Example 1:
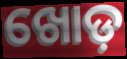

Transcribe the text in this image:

ଖୋଡ଼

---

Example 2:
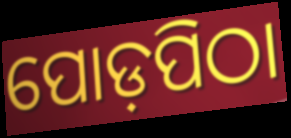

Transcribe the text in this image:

ପୋଡ଼ପିଠା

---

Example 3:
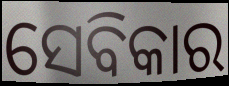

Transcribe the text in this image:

ସେବିକାର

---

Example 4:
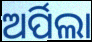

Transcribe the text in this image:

ଅର୍ପିଲା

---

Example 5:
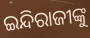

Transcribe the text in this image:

ଇନ୍ଦିରାଜୀଙ୍କୁ